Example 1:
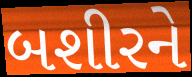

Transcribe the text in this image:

બશીરને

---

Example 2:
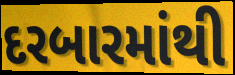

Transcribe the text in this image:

દરબારમાંથી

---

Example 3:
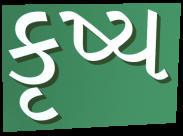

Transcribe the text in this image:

કૃષ્ય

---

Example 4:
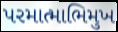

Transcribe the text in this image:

પરમાત્માભિમુખ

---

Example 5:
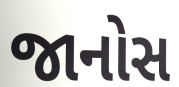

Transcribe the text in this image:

જાનોસ